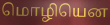
மொழியென